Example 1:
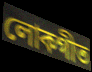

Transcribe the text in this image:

লোকগীত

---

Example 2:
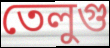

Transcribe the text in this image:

তেলুগু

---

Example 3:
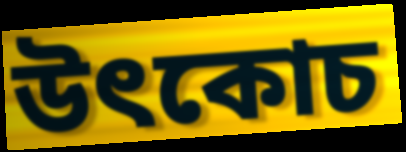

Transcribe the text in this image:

উৎকোচ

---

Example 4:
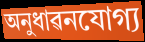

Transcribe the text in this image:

অনুধাৱনযোগ্য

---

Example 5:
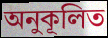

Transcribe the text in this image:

অনুকূলিত